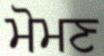
ਮੋਮਣ